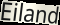
Eiland